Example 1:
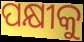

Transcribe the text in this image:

ପକ୍ଷୀକୁ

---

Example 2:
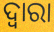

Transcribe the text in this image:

ଦ୍ବାରା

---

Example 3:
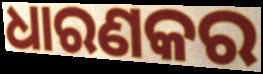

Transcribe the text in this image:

ଧାରଣକର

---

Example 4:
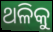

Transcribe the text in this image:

ଥଳିକୁ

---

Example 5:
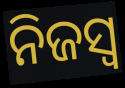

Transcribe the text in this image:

ନିଜସ୍ୱ